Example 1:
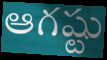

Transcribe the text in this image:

ఆగష్టు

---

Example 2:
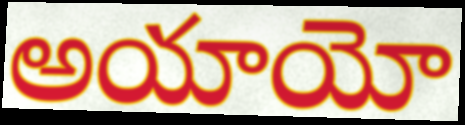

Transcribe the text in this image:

అయాయో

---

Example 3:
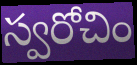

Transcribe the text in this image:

స్వరోచిం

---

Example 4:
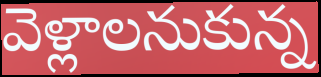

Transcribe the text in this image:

వెళ్లాలనుకున్న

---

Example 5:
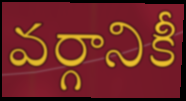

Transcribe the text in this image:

వర్గానికీ